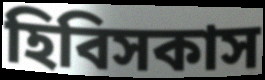
হিবিসকাস